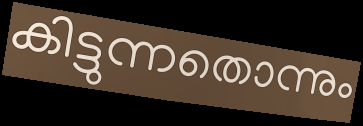
കിട്ടുന്നതൊന്നും